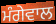
ਮੰਗੇਵਾਲ